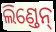
ଲିଣ୍ଡେନ୍